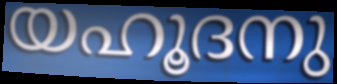
യഹൂദനു